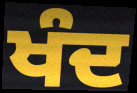
ਖੰਦ